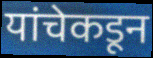
यांचेकडून